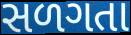
સળગતા